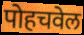
पोहचवेल